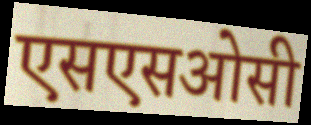
एसएसओसी